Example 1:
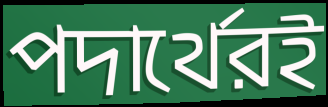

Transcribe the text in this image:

পদার্থেরই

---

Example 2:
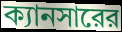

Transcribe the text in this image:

ক্যানসারের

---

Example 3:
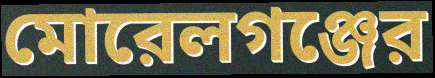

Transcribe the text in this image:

মোরেলগঞ্জের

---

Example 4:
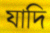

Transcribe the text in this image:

যাদি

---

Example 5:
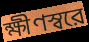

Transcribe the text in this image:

ক্ষীণস্বরে